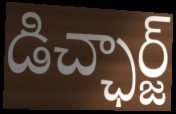
డిచ్ఛార్జ్